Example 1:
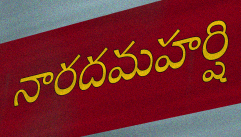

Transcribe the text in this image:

నారదమహర్షి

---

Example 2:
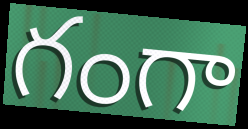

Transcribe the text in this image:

గంగా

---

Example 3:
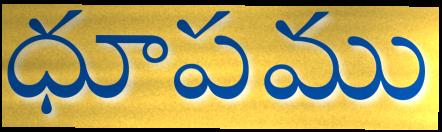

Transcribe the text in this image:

ధూపము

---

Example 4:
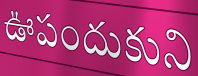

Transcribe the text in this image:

ఊపందుకుని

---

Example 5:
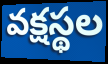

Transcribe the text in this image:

వక్షస్థల